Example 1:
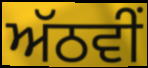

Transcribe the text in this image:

ਅੱਠਵੀੰ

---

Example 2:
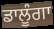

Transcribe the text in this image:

ਡਾਲੂੰਗਾ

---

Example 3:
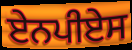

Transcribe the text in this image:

ਏਨਪੀਏਸ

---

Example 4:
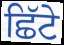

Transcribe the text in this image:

ਛਿੱਟੇ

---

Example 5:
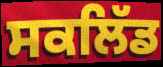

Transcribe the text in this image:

ਸਕਲਿੱਡ